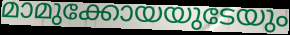
മാമുക്കോയയുടേയും